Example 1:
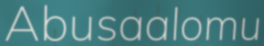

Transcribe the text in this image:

Abusaalomu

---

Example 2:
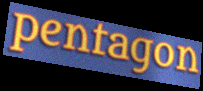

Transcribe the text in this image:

pentagon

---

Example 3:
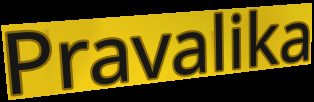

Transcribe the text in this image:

Pravalika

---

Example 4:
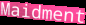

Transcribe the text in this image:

Maidment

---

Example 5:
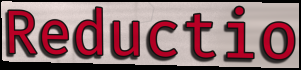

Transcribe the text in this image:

Reductio